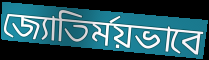
জ্যোতির্ময়ভাবে